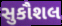
સુકૌશલ